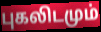
புகலிடமும்